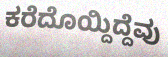
ಕರೆದೊಯ್ದಿದ್ದೆವು